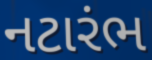
નટારંભ